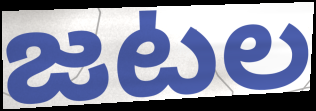
జటల